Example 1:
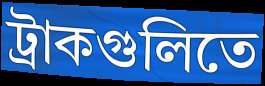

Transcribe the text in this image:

ট্রাকগুলিতে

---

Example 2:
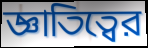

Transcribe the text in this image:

জ্ঞাতিত্বের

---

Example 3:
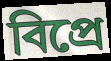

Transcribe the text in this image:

বিপ্রে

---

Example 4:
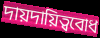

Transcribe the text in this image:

দায়দায়িত্ববোধ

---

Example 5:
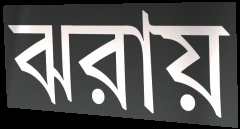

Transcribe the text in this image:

ঝরায়